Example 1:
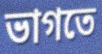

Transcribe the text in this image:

ভাগতে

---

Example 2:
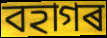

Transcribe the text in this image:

বহাগৰ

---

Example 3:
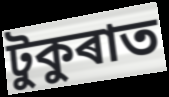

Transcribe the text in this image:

টুকুৰাত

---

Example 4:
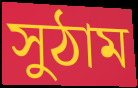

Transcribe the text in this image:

সুঠাম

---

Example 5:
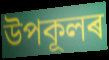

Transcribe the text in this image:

উপকূলৰ